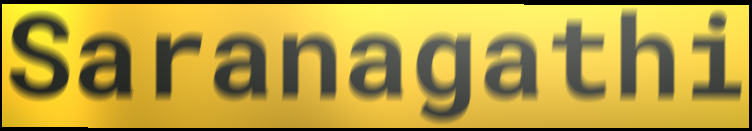
Saranagathi